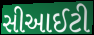
સીઆઈટી